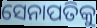
ସେନାପତିକୁ